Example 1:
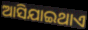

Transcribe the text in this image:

ଆସିଯାଇଥାଏ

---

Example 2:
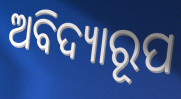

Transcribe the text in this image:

ଅବିଦ୍ୟାରୂପ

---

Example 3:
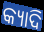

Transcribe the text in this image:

କ୍ୟାଦି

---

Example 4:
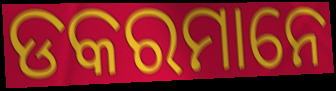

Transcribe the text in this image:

ଡକରମାନେ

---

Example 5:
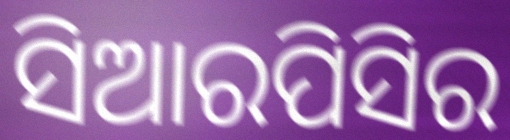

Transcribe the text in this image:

ସିଆରପିସିର